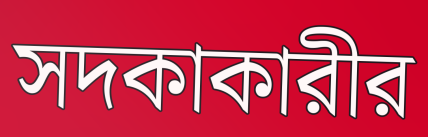
সদকাকারীর